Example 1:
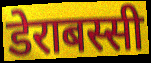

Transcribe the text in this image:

डेराबस्सी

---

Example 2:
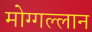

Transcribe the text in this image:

मोग्गल्लान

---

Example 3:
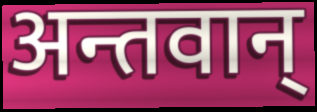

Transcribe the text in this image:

अन्तवान्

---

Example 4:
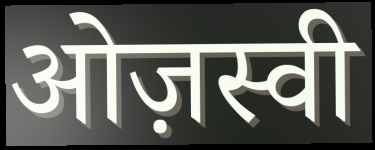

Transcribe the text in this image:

ओज़स्वी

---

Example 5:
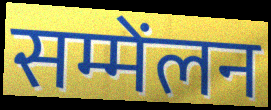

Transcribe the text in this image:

सम्मेंलन